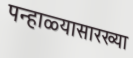
पन्हाळ्यासारख्या